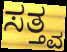
ಸತ್ತ್ವ